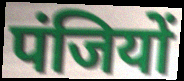
पंजियों